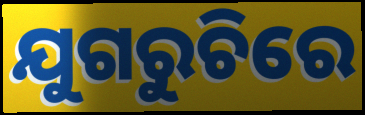
ଯୁଗରୁଚିରେ